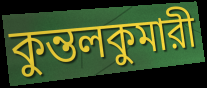
কুন্তলকুমারী